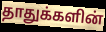
தாதுக்களின்